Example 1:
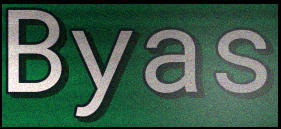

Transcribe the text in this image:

Byas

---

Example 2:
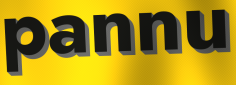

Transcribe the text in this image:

pannu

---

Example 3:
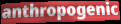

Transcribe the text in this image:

anthropogenic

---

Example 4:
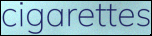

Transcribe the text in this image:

cigarettes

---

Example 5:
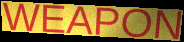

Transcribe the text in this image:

WEAPON